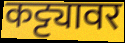
कट्ट्यावर